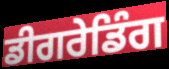
ਡੀਗਰੇਡਿੰਗ